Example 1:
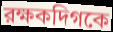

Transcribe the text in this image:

রক্ষকদিগকে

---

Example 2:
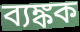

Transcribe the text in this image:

ব্যঙ্কক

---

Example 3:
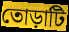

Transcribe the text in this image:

তোড়াটি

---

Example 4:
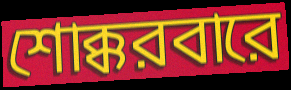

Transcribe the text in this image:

শোক্করবারে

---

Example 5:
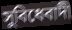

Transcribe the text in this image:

সুবিধেবাদী